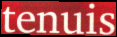
tenuis